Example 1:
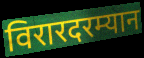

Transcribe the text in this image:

विरारदरम्यान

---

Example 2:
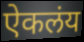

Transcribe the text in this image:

ऐकलंय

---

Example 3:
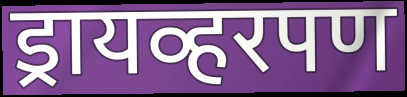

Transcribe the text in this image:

ड्रायव्हरपण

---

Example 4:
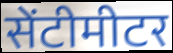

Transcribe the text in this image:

सेंटीमीटर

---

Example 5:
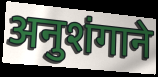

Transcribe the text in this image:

अनुशंगाने